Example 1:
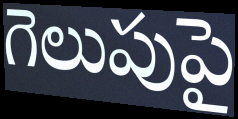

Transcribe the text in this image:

గెలుపుపై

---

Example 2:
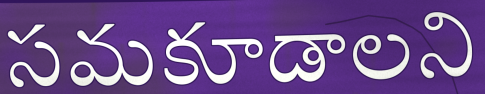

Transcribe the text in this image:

సమకూడాలని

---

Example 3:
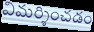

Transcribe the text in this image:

విమర్శించడం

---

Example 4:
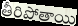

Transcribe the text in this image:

తీరిపోతాయి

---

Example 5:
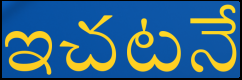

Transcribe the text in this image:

ఇచటనే